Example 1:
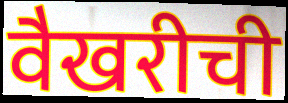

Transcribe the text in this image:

वैखरीची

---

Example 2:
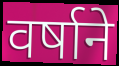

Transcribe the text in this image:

वर्षाने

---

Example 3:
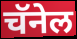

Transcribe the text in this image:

चॅनेल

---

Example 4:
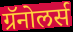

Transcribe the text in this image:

ग्रॅनोलर्स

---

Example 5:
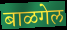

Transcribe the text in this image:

बाळगेल